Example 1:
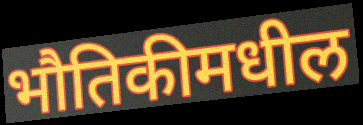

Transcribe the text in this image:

भौतिकीमधील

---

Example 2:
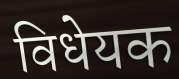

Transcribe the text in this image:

विधेयक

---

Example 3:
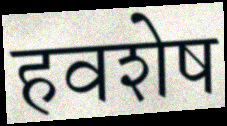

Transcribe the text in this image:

हवशेष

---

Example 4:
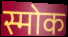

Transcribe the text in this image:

स्मोक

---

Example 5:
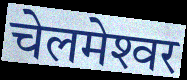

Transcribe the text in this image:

चेलमेश्‍वर